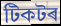
টিকটৰ